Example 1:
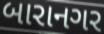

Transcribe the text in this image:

બારાનગર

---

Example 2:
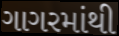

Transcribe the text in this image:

ગાગરમાંથી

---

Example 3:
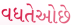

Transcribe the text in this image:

વધતેઓછે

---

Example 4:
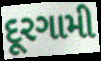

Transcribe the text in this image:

દૂરગામી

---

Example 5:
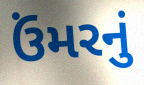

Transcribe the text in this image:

ઉંમરનું